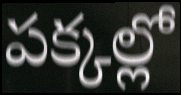
పక్కల్లో